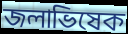
জলাভিষেক